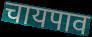
चायपाव